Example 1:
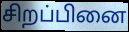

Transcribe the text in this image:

சிறப்பினை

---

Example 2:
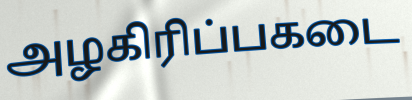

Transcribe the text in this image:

அழகிரிப்பகடை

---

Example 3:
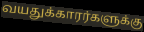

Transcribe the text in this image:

வயதுக்காரர்களுக்கு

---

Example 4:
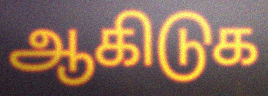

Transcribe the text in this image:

ஆகிடுக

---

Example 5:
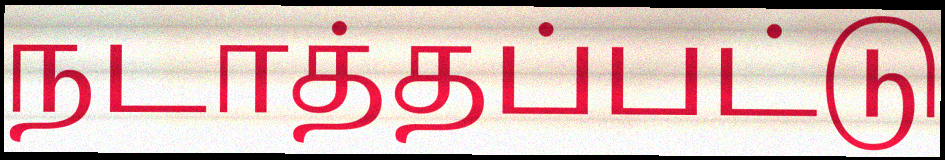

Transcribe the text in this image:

நடாத்தப்பட்டு